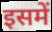
इसमें